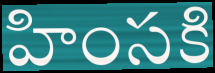
హింసకి